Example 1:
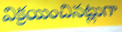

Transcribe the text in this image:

విక్రయించినట్లుగా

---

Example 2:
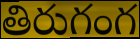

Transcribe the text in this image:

తిరుగంగ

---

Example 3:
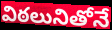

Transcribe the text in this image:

విఠలునితోనే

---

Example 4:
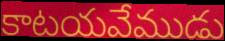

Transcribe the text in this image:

కాటయవేముడు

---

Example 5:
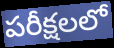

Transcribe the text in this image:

పరీక్షలలో